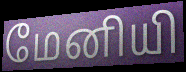
மேனியி